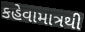
કહેવામાત્રથી